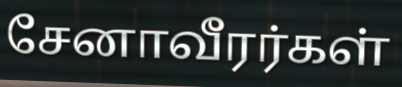
சேனாவீரர்கள்